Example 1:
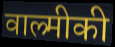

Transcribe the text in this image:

वाल्मीकी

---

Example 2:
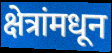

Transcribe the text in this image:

क्षेत्रांमधून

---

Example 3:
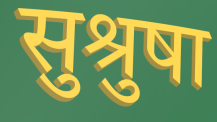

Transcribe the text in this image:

सुश्रुषा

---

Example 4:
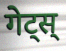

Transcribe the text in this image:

गेट्स्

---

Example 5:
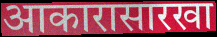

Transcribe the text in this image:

आकारासारखा